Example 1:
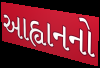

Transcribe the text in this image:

આહ્વાનનો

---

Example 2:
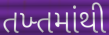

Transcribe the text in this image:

તખ્તમાંથી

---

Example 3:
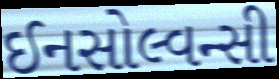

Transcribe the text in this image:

ઈનસોલ્વન્સી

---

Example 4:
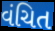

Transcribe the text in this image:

વંચિત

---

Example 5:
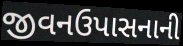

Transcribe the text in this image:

જીવનઉપાસનાની